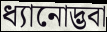
ধ্যানোদ্ভবা